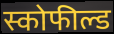
स्कोफील्ड